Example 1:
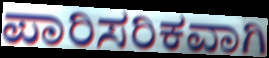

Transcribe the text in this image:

ಪಾರಿಸರಿಕವಾಗಿ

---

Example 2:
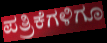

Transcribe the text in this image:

ಪತ್ರಿಕೆಗಳಿಗೂ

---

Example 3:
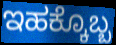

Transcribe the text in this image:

ಇಹಕ್ಕೊಬ್ಬ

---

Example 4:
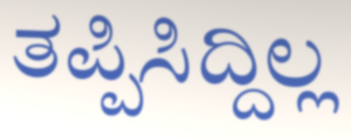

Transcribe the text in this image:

ತಪ್ಪಿಸಿದ್ದಿಲ್ಲ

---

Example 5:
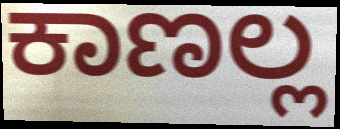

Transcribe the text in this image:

ಕಾಣಲ್ಲ